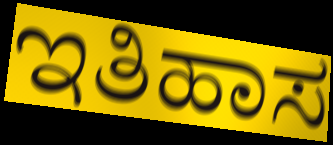
ಇತಿಹಾಸ